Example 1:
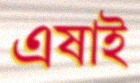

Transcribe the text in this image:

এষাই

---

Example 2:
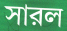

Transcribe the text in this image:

সারল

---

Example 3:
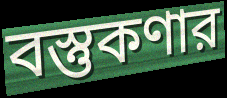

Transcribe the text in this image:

বস্তুকণার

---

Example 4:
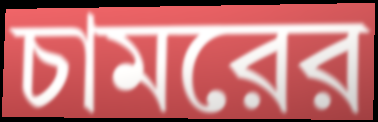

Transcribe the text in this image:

চামরের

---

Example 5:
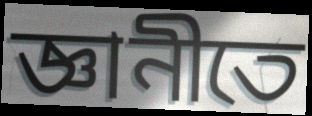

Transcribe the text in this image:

জ্ঞানীতে